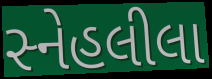
સ્નેહલીલા